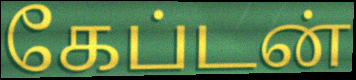
கேப்டன்